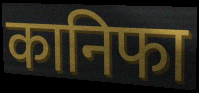
कानिफा